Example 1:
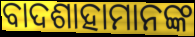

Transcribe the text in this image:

ବାଦଶାହାମାନଙ୍କ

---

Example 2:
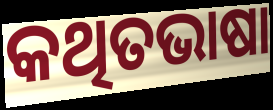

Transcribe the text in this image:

କଥିତଭାଷା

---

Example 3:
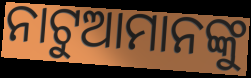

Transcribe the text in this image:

ନାଟୁଆମାନଙ୍କୁ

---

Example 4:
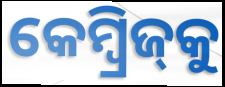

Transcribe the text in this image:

କେମ୍ୱ୍ରିଜ୍‌କୁ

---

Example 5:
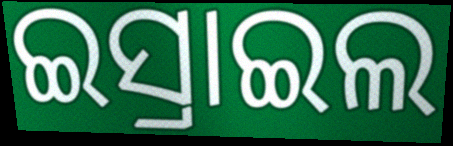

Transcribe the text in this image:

ଇସ୍ରାଇଲ